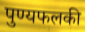
पुण्यफलकी